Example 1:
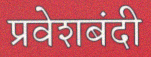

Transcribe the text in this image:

प्रवेशबंदी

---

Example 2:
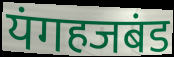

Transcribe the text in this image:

यंगहजबंड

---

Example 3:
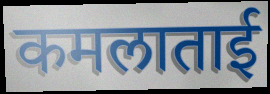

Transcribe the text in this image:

कमलाताई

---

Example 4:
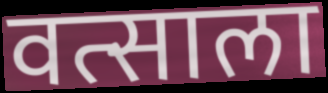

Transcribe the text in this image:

वत्साला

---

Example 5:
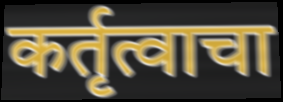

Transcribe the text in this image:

कर्तृत्वाचा